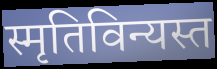
स्मृतिविन्यस्त